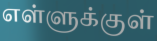
எள்ளுக்குள்